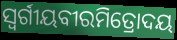
ସ୍ୱର୍ଗୀୟବୀରମିତ୍ରୋଦୟ